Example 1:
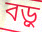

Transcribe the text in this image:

বড়ু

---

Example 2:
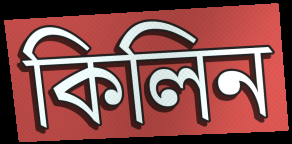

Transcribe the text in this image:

কিলিন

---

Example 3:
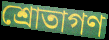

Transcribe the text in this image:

শ্রোতাগণ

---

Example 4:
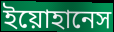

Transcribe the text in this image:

ইয়োহানেস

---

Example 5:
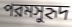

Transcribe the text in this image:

পরমসুহৃদ